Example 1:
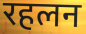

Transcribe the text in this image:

रहलन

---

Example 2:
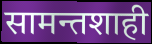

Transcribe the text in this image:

सामन्तशाही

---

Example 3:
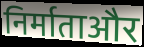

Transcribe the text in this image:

निर्माताऔर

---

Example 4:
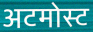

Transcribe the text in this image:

अटमोस्ट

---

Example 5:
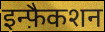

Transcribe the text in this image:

इन्फ़ैकशन